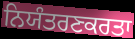
ਨਿਯੰਤਰਣਕਰਤਾ